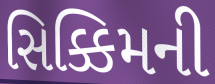
સિક્કિમની